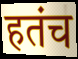
हतंच